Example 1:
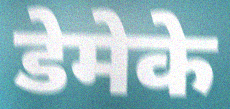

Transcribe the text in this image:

डेमेके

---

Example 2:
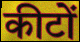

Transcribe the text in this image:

कीटों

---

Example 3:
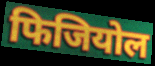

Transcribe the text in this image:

फिजियोल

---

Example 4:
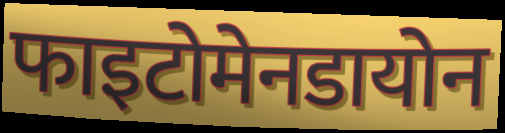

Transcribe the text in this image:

फाइटोमेनडायोन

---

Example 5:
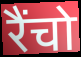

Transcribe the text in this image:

रैंचो